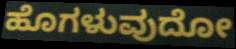
ಹೊಗಳುವುದೋ